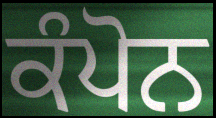
ਕੰਪੋਨ